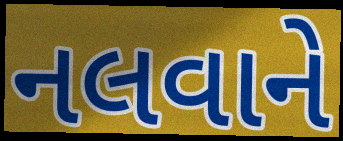
નલવાને